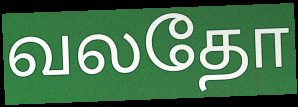
வலதோ